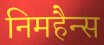
निमहैन्स